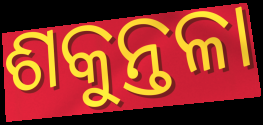
ଶକୁନ୍ତଳା